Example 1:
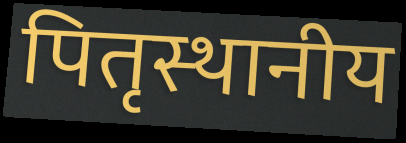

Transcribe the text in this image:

पितृस्थानीय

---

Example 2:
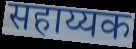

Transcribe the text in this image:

सहाय्यक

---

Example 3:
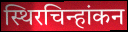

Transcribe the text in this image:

स्थिरचिन्हांकन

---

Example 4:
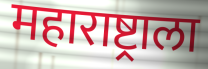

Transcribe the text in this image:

महाराष्ट्राला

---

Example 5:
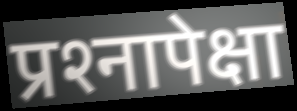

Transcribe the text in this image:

प्रश्नापेक्षा